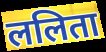
ललिता